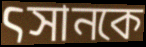
ৎসানকে